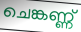
ചെങ്കണ്ണ്